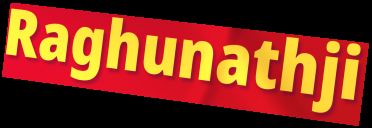
Raghunathji